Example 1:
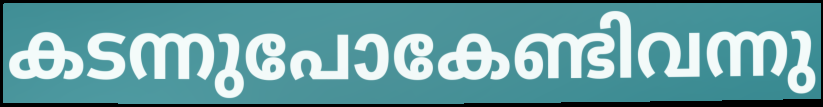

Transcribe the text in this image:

കടന്നുപോകേണ്ടിവന്നു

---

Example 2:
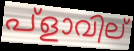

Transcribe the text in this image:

പ്ളാവില്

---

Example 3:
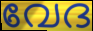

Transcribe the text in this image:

വേദ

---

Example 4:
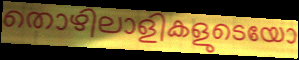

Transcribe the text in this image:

തൊഴിലാളികളുടെയോ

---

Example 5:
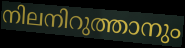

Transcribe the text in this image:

നിലനിറുത്താനും